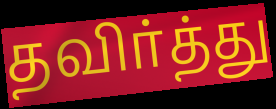
தவிர்த்து